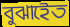
বুঝাইেত